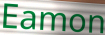
Eamon